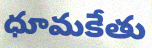
ధూమకేతు